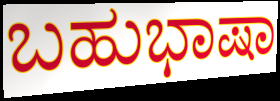
ಬಹುಭಾಷಾ